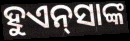
ହୁଏନ୍‍ସାଙ୍କ